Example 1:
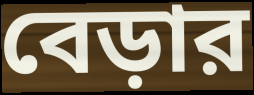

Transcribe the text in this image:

বেড়ার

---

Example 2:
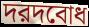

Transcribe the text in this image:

দরদবোধ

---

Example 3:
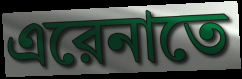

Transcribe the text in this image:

এরেনাতে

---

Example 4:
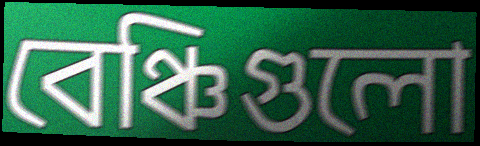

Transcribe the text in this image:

বেঞ্চিগুলো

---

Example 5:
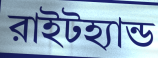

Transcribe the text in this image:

রাইটহ্যান্ড